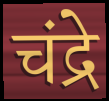
चंद्रे